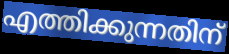
എത്തിക്കുന്നതിന്